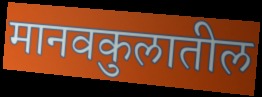
मानवकुलातील